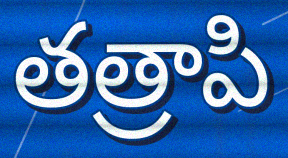
తత్రాపి